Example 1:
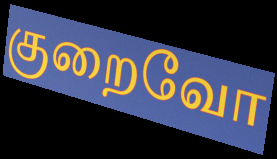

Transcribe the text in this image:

குறைவோ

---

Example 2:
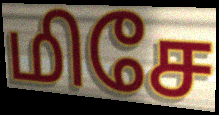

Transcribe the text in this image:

மிசே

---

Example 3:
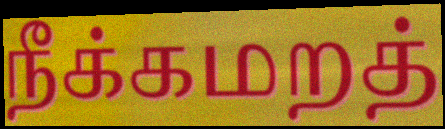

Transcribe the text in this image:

நீக்கமறத்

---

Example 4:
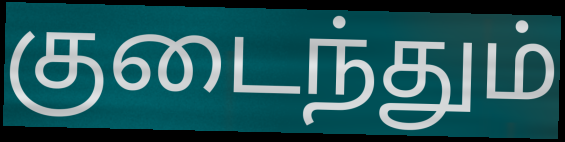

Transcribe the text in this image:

குடைந்தும்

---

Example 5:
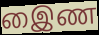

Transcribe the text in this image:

இைண